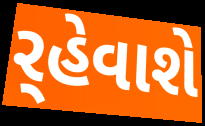
ર્‌હેવાશે